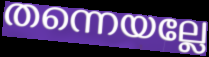
തന്നെയല്ലേ